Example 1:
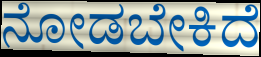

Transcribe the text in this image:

ನೋಡಬೇಕಿದೆ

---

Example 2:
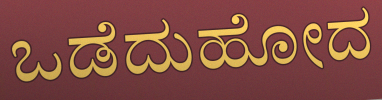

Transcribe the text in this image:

ಒಡೆದುಹೋದ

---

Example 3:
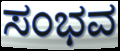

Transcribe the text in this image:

ಸಂಭವ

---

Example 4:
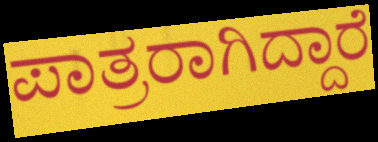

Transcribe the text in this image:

ಪಾತ್ರರಾಗಿದ್ದಾರೆ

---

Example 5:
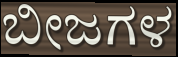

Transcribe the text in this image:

ಬೀಜಗಳ